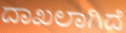
ದಾಖಲಾಗಿದೆ